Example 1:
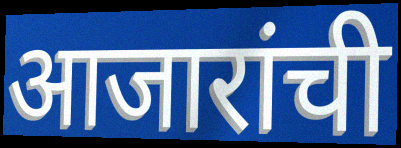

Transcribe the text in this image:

आजारांची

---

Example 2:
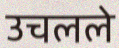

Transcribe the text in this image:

उचलले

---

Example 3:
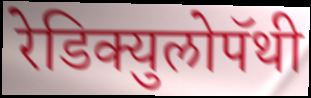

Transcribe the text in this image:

रेडिक्युलोपॅथी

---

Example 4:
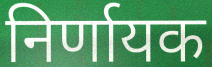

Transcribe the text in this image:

निर्णायक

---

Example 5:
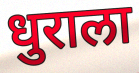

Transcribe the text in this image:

धुराला